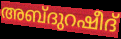
അബ്ദുറഷീദ്